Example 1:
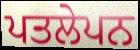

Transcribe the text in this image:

ਪਤਲੇਪਨ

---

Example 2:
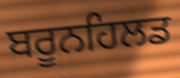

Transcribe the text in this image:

ਬਰੂਨਹਿਲਡ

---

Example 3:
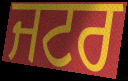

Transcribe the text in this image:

ਜਟਰ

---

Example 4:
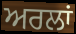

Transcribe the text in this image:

ਅਰਲਾਂ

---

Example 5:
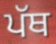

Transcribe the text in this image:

ਪੱਥ